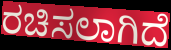
ರಚಿಸಲಾಗಿದೆ